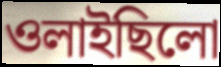
ওলাইছিলো